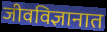
जीवविज्ञानात